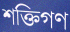
শক্তিগণ